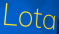
Lota